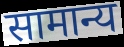
सामान्य